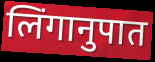
लिंगानुपात